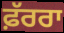
ਫ਼ੱਰਰਾ